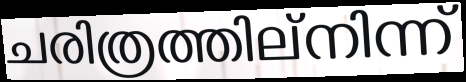
ചരിത്രത്തില്നിന്ന്